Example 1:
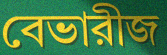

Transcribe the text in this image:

বেভারীজ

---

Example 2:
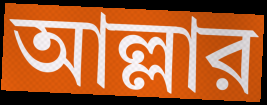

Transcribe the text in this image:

আল্লার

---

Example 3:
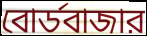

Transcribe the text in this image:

বোর্ডবাজার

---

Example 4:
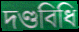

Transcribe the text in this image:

দণ্ডবিধি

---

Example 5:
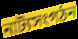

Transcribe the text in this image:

নাট্যসংগঠন